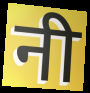
नी